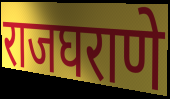
राजघराणे